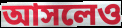
আসলেও